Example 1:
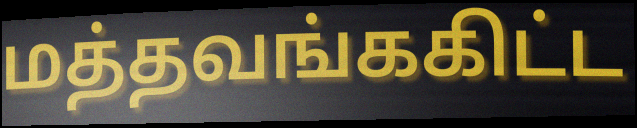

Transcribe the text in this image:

மத்தவங்ககிட்ட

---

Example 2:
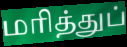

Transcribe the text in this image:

மரித்துப்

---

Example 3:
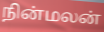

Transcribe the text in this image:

நின்மலன்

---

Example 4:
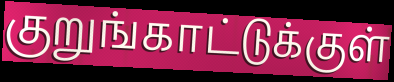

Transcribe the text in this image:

குறுங்காட்டுக்குள்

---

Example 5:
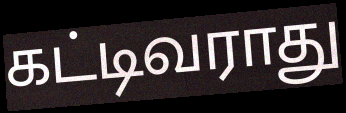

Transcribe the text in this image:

கட்டிவராது